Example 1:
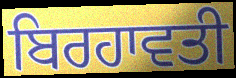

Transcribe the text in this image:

ਬਿਰਹਾਵਤੀ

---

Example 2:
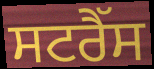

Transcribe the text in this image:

ਸਟਰੈੱਸ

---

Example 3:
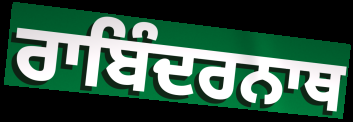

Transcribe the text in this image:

ਰਾਬਿੰਦਰਨਾਥ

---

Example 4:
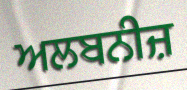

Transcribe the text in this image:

ਅਲਬਨੀਜ਼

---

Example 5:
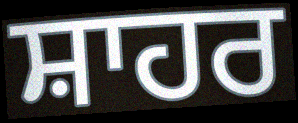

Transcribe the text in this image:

ਸ਼ਾਹਰ